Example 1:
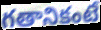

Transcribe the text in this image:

గతానికంటే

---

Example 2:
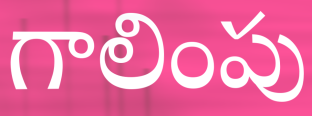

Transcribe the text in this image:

గాలింపు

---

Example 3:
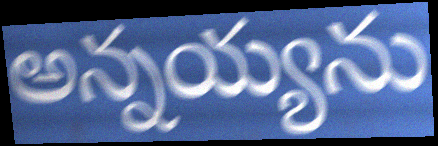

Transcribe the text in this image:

అన్నయ్యను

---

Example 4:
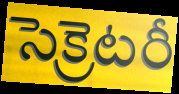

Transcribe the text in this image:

సెక్రెటరీ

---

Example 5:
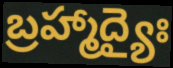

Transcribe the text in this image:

బ్రహ్మాద్యైః